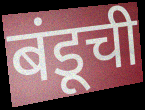
बंडूची